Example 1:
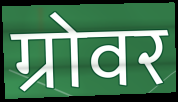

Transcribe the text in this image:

ग्रोवर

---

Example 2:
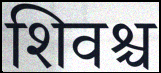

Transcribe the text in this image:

शिवश्च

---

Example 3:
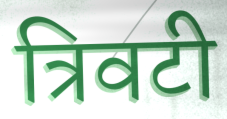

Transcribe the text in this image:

त्रिवटी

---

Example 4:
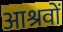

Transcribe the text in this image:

आश्रवों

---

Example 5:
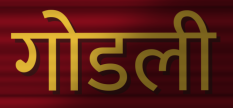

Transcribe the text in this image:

गोडली